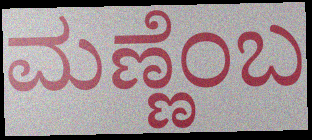
ಮಣ್ಣೆಂಬ